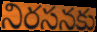
నిరసనకు